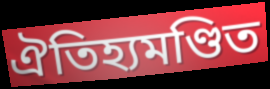
ঐতিহ্যমণ্ডিত